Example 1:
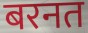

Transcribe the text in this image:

बरनत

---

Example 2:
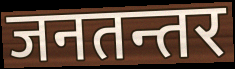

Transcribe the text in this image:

जनतन्तर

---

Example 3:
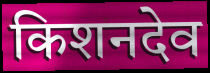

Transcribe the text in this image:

किशनदेव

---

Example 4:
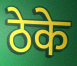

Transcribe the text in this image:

ठेके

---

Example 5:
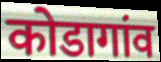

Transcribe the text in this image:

कोडागांव